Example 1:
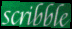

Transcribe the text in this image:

scribble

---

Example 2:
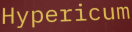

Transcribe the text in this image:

Hypericum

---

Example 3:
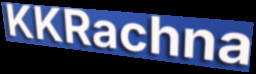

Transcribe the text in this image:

KKRachna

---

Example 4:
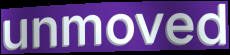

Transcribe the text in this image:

unmoved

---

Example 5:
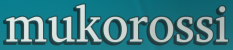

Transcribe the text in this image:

mukorossi